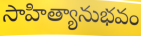
సాహిత్యానుభవం